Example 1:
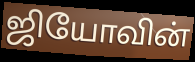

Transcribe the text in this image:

ஜியோவின்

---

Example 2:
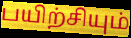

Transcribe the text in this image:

பயிற்சியும்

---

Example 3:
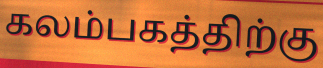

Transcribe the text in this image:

கலம்பகத்திற்கு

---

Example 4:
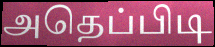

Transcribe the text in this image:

அதெப்பிடி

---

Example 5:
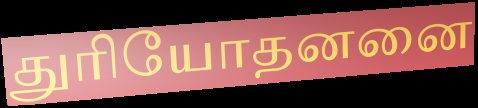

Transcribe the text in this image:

துரியோதனனை